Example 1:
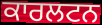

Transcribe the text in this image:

ਕਾਰਲਟਨ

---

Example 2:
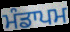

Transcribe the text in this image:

ਮੰਡਾਪਮ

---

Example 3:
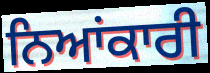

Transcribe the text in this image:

ਨਿਆਂਕਾਰੀ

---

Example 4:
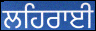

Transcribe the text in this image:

ਲਹਿਰਾਈ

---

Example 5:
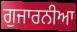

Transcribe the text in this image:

ਗੁਜਾਰਨੀਆ